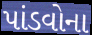
પાંડવોના